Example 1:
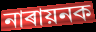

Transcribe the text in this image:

নাৰায়নক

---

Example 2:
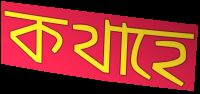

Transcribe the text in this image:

কথাহে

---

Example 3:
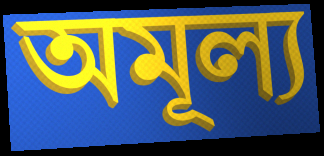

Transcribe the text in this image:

অমূল্য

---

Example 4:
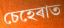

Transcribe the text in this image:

চেহেৰাত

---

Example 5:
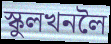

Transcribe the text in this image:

স্কুলখনলৈ